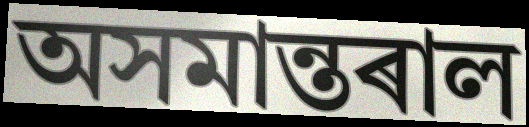
অসমান্তৰাল